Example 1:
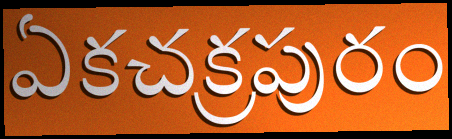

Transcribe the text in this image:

ఏకచక్రపురం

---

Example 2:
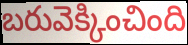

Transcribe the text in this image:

బరువెక్కించింది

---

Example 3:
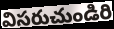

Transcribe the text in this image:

విసరుచుండిరి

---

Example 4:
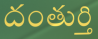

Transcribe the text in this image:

దంతుర్తి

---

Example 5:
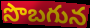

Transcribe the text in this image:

సొబగున